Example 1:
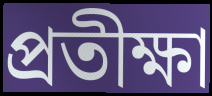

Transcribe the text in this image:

প্ৰতীক্ষা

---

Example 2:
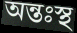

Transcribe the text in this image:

অন্তঃস্থ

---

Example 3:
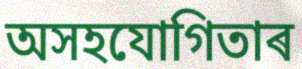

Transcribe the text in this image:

অসহযোগিতাৰ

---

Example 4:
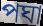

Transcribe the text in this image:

পঘা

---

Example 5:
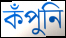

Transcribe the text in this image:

কঁপুনি